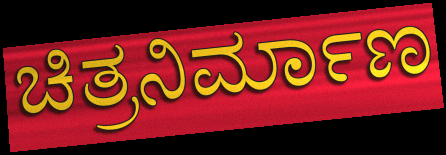
ಚಿತ್ರನಿರ್ಮಾಣ